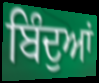
ਬਿੰਦੁਆਂ